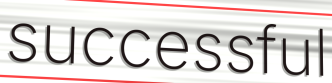
successful